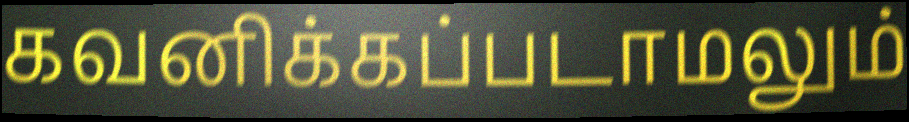
கவனிக்கப்படாமலும்